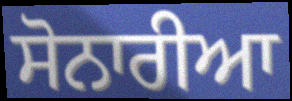
ਸੋਨਾਰੀਆ